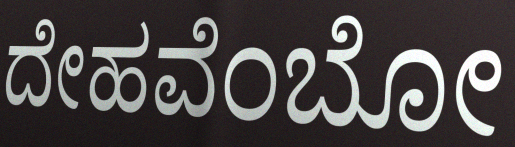
ದೇಹವೆಂಬೋ